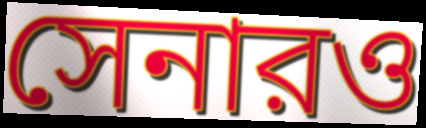
সেনারও